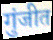
गुंजीत